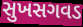
સુખસગવડ